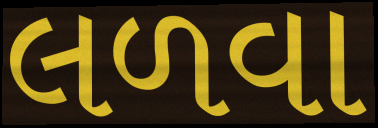
લળવા